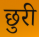
छुरी